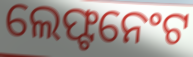
ଲେଫ୍ଟନେଂଟ